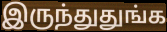
இருந்துதுங்க